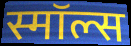
स्मॉल्स